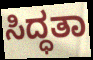
ಸಿದ್ಧತಾ